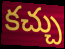
కచ్చు